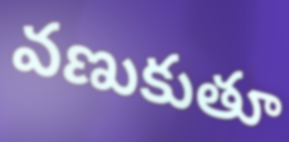
వణుకుతూ